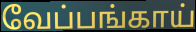
வேப்பங்காய்